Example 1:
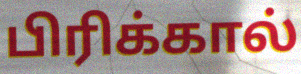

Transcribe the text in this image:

பிரிக்கால்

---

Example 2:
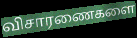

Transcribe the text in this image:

விசாரணைகளை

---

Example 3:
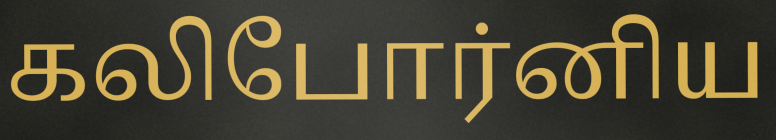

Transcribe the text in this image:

கலிபோர்னிய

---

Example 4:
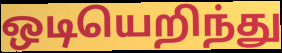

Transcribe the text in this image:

ஒடியெறிந்து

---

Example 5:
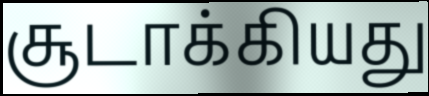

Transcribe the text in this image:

சூடாக்கியது